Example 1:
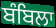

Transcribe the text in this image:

ਬੰਬਿਲਾ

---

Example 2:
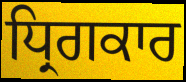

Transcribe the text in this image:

ਧ੍ਰਿਗਕਾਰ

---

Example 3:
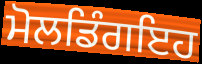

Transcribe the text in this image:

ਮੋਲਡਿੰਗਇਹ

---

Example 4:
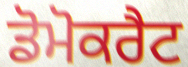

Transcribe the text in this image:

ਡੋਮੋਕਰੈਟ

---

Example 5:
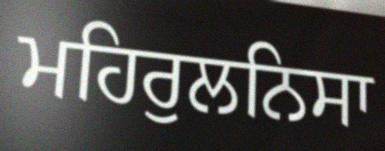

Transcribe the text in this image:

ਮਹਿਰੁਲਨਿਸਾ